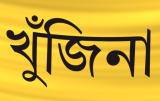
খুঁজিনা